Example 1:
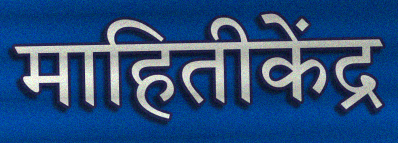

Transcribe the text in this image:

माहितीकेंद्र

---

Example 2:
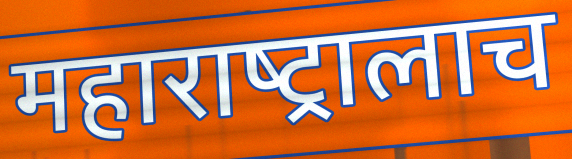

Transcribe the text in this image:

महाराष्ट्रालाच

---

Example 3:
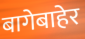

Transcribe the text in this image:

बागेबाहेर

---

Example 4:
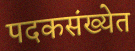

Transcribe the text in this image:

पदकसंख्येत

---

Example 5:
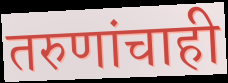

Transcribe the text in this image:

तरुणांचाही